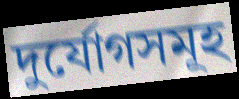
দুর্যোগসমূহ